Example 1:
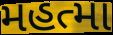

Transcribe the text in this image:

મહત્મા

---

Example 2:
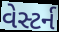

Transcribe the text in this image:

વેસ્ટર્ન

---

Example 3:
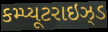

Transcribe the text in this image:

કમ્પ્યૂટરાઇઝ્ડ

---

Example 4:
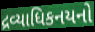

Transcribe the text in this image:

દ્રવ્યાધિકનયનો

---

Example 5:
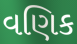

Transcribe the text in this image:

વણિક